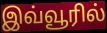
இவ்வூரில்